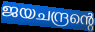
ജയചന്ദ്രന്റെ